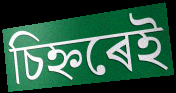
চিহ্নৰেই